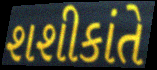
શશીકાંતે